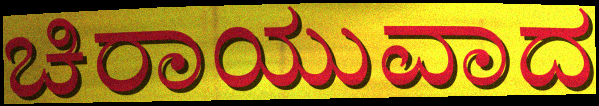
ಚಿರಾಯುವಾದ